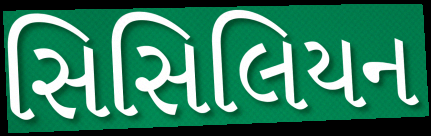
સિસિલિયન